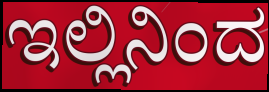
ಇಲ್ಲಿನಿಂದ